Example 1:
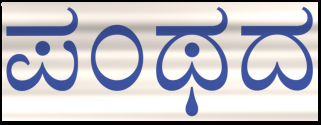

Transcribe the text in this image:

ಪಂಥದ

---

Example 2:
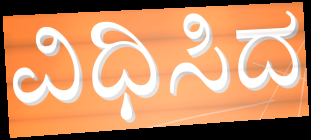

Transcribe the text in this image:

ವಿಧಿಸಿದ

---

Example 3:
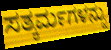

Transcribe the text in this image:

ಸತ್ಕರ್ಮಗಳನ್ನು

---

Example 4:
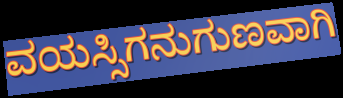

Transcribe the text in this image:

ವಯಸ್ಸಿಗನುಗುಣವಾಗಿ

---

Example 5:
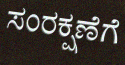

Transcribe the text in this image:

ಸಂರಕ್ಷಣೆಗೆ